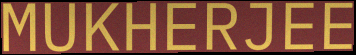
MUKHERJEE